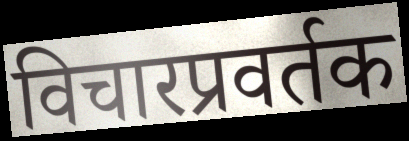
विचारप्रवर्तक